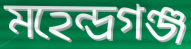
মহেন্দ্রগঞ্জ